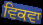
ਵਿਕਵਾ